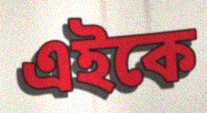
এইকে